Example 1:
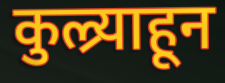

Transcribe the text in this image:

कुल्र्याहून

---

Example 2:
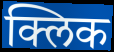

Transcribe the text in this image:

क्लिक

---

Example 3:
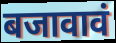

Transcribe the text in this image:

बजावावं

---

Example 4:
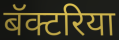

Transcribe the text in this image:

बॅक्टरिया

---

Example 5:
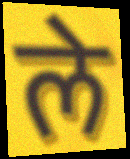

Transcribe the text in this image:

ले